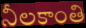
నీలకాంతి